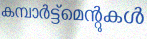
കമ്പാർട്ട്മെന്റുകൾ